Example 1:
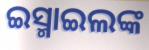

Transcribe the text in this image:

ଇସ୍ମାଇଲଙ୍କ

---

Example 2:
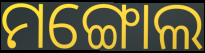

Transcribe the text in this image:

ମଙ୍ଗୋଲ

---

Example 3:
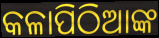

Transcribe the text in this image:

କଳାପିଠିଆଙ୍କ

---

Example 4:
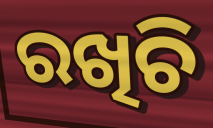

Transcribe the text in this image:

ରଖିଚି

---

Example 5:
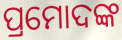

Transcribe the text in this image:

ପ୍ରମୋଦଙ୍କ